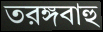
তরঙ্গবাহু